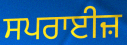
ਸਪਰਾਈਜ਼